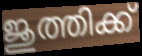
ജുത്തിക്ക്